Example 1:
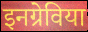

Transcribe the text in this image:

इनग्रेविया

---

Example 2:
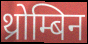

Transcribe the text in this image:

थ्रोम्बिन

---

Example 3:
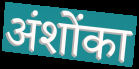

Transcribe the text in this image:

अंशोंका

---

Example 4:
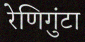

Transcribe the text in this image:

रेणिगुंटा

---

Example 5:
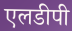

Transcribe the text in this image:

एलडीपी